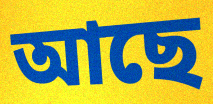
আছে